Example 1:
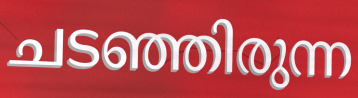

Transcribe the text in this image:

ചടഞ്ഞിരുന്ന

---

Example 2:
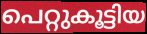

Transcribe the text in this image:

പെറ്റുകൂട്ടിയ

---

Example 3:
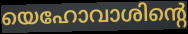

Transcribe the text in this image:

യെഹോവാശിന്റെ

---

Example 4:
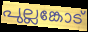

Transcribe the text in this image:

പുല്ലങ്കോട്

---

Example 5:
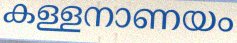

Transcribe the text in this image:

കള്ളനാണയം